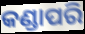
କଣ୍ଡାପରି